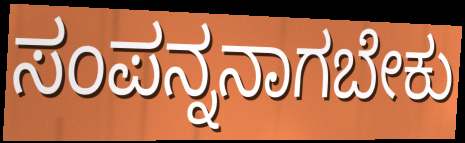
ಸಂಪನ್ನನಾಗಬೇಕು